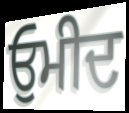
ਓੁਮੀਦ